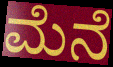
ಮೆನೆ